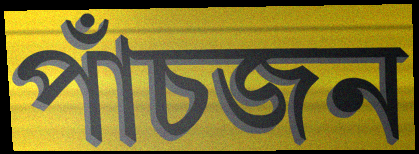
পাঁচজন